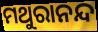
ମଥୁରାନନ୍ଦ